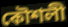
কৌশলী